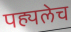
पह्यलेच